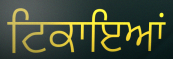
ਟਿਕਾਇਆਂ